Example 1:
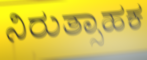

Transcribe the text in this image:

ನಿರುತ್ಸಾಹಕ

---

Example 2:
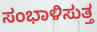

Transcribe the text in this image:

ಸಂಭಾಳಿಸುತ್ತ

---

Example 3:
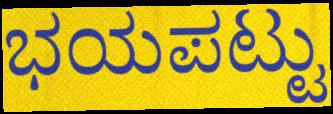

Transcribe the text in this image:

ಭಯಪಟ್ಟು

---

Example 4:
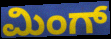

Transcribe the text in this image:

ಮಿಂಗ್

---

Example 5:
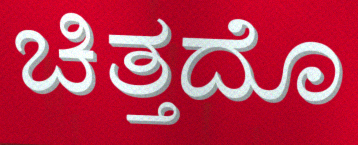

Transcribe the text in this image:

ಚಿತ್ತದೊ